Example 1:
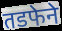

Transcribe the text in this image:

तडफेने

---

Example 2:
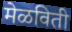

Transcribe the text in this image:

मेळविती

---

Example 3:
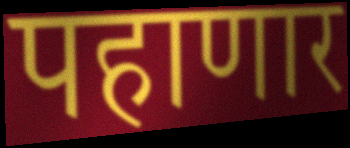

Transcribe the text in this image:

पहाणार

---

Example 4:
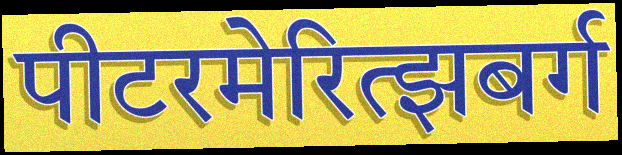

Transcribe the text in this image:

पीटरमेरित्झबर्ग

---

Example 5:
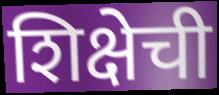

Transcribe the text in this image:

शिक्षेची